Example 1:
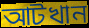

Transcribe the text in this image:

আটখান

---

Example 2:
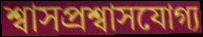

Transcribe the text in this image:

শ্বাসপ্রশ্বাসযোগ্য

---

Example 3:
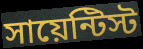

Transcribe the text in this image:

সায়েন্টিস্ট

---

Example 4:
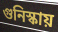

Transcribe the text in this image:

গুনিস্কায়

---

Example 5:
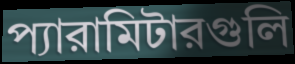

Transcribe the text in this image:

প্যারামিটারগুলি